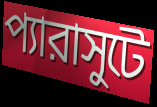
প্যারাসুটে